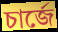
চার্জে